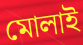
মোলাই